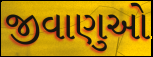
જીવાણુઓ